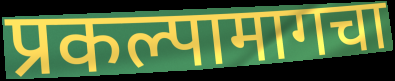
प्रकल्पामागचा